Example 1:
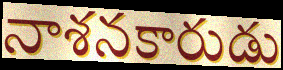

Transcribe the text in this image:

నాశనకారుడు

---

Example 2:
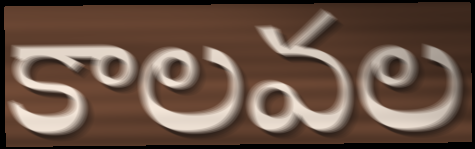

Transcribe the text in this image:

కాలవల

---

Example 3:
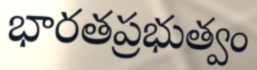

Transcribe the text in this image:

భారతప్రభుత్వం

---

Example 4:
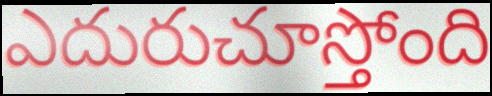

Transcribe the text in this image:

ఎదురుచూస్తోంది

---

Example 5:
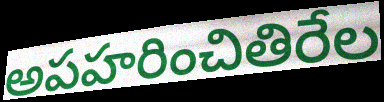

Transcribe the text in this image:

అపహరించితిరేల